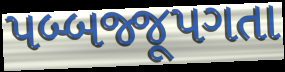
પબ્બજ્જૂપગતા